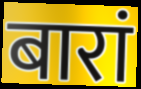
बारां